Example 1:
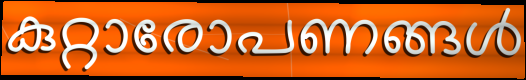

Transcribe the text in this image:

കുറ്റാരോപണങ്ങൾ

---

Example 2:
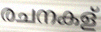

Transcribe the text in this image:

രചനകള്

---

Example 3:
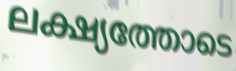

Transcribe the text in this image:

ലക്ഷ്യത്തോടെ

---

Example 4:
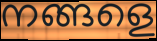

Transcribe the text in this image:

നങ്ങളെ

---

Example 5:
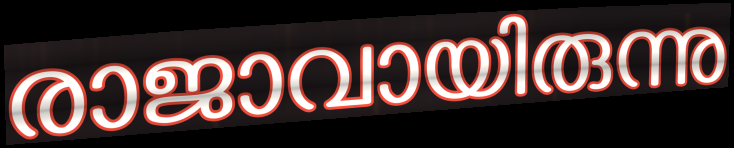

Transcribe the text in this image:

രാജാവായിരുന്നു